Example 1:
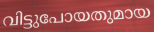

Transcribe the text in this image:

വിട്ടുപോയതുമായ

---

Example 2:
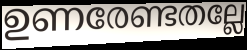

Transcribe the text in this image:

ഉണരേണ്ടതല്ലേ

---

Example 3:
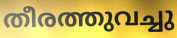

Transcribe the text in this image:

തീരത്തുവച്ചു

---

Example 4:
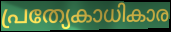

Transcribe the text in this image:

പ്രത്യേകാധികാര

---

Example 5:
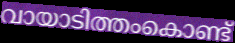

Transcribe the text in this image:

വായാടിത്തംകൊണ്ട്